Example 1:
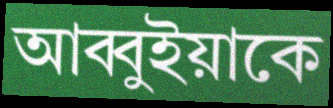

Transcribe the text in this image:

আব্বুইয়াকে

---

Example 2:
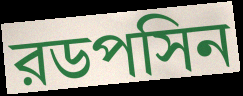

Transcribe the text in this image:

রডপসিন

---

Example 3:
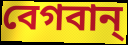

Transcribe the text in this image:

বেগবান্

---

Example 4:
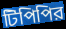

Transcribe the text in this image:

টিপিপির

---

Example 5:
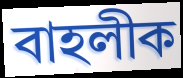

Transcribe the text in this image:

বাহলীক